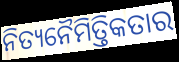
ନିତ୍ୟନୈମିତ୍ତିକତାର